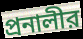
প্রনালীর